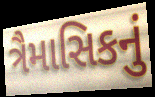
ત્રૈમાસિકનું